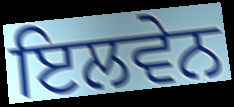
ਇਲਵੇਨ